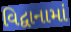
વિદ્વાનામાં